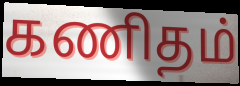
கணிதம்